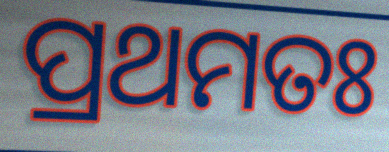
ପ୍ରଥମତଃ